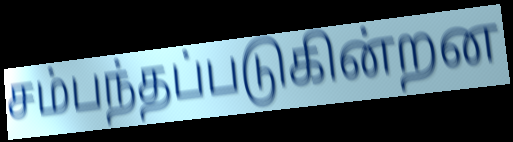
சம்பந்தப்படுகின்றன